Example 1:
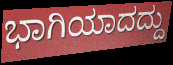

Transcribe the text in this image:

ಭಾಗಿಯಾದದ್ದು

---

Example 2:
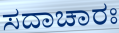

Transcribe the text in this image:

ಸದಾಚಾರಃ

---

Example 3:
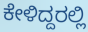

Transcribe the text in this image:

ಕೇಳಿದ್ದರಲ್ಲಿ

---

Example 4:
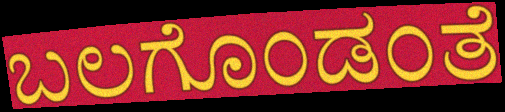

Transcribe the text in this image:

ಬಲಗೊಂಡಂತೆ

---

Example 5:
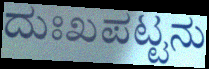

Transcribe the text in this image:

ದುಃಖಪಟ್ಟನು